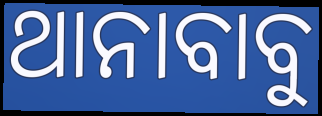
ଥାନାବାବୁ